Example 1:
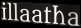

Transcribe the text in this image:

illaatha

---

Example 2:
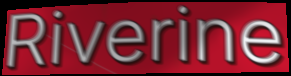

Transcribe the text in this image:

Riverine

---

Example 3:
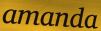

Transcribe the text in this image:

amanda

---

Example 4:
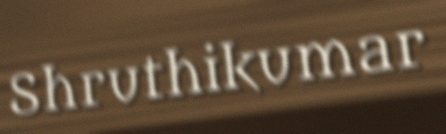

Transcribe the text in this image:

Shruthikumar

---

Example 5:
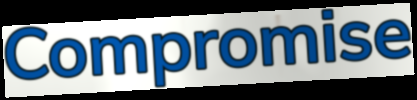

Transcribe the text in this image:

Compromise